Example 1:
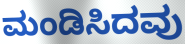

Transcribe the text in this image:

ಮಂಡಿಸಿದವು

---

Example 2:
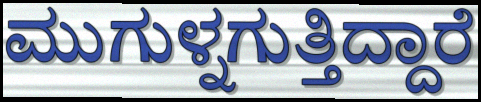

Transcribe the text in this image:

ಮುಗುಳ್ನಗುತ್ತಿದ್ದಾರೆ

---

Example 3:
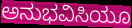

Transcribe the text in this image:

ಅನುಭವಿಸಿಯೂ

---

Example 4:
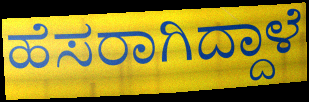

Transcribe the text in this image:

ಹೆಸರಾಗಿದ್ದಾಳೆ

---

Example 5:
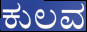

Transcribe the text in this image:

ಕುಲವ